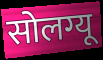
सोलग्यू